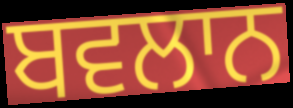
ਬਵਲਾਨ